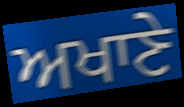
ਅਖਾਣੇ